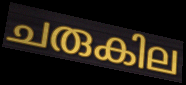
ചരുകില